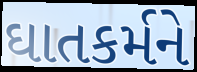
ઘાતકર્મને